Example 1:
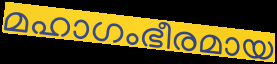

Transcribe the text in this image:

മഹാഗംഭീരമായ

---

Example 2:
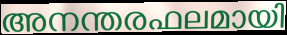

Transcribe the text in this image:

അനന്തരഫലമായി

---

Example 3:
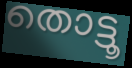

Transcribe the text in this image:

തൊട്ടൂ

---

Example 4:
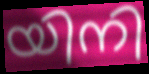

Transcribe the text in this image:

യിനി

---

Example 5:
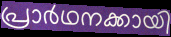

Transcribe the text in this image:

പ്രാർഥനക്കായി